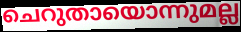
ചെറുതായൊന്നുമല്ല